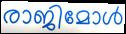
രാജിമോൾ